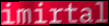
imirtal